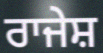
ਰਾਜੇਸ਼